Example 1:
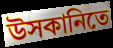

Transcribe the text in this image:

উসকানিতে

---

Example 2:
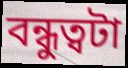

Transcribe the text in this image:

বন্ধুত্বটা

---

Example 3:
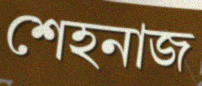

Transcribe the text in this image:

শেহনাজ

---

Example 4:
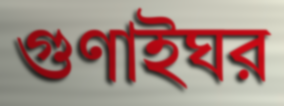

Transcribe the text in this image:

গুণাইঘর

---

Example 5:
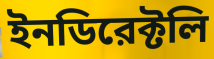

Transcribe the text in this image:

ইনডিরেক্টলি